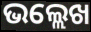
ଭଲ୍ଲେଖ